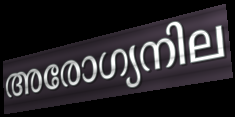
അരോഗ്യനില